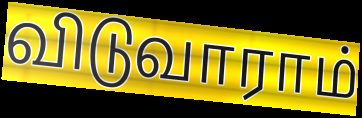
விடுவாராம்